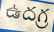
ఉదగ్ర